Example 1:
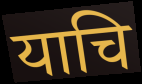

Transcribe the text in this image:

याचि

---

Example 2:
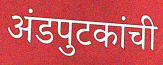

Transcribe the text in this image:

अंडपुटकांची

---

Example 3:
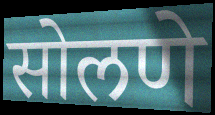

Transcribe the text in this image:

सोलणे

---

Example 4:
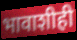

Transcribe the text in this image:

भावाशीही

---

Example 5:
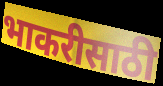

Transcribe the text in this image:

भाकरीसाठी